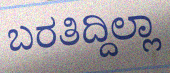
ಬರತಿದ್ದಿಲ್ಲಾ